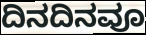
ದಿನದಿನವೂ